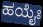
ಹಯೈಃ